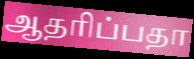
ஆதரிப்பதா